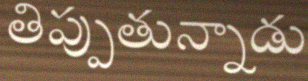
తిప్పుతున్నాడు